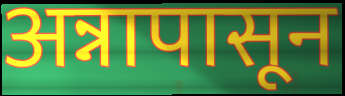
अन्नापासून